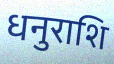
धनुराशि